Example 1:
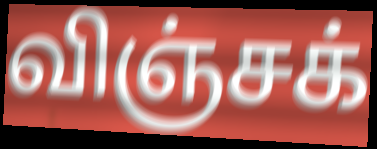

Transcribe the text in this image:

விஞ்சக்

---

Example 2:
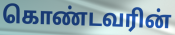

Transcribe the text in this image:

கொண்டவரின்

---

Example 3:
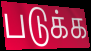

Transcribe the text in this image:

படுக்க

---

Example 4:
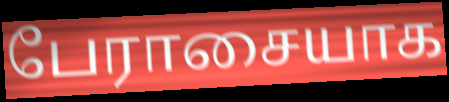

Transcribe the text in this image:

பேராசையாக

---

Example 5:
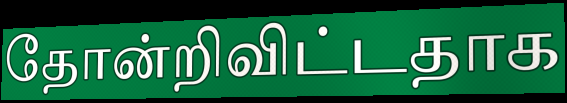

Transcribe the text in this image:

தோன்றிவிட்டதாக